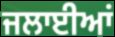
ਜਲਾਈਆਂ